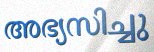
അഭ്യസിച്ചു